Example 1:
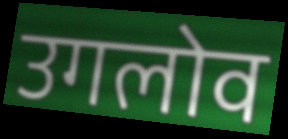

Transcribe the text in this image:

उगलोव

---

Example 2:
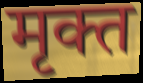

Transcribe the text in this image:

मृक्त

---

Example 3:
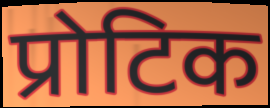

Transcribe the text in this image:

प्रोटिक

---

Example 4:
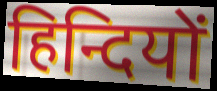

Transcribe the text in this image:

हिन्दियों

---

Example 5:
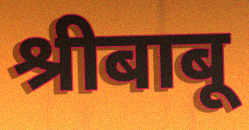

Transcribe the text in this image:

श्रीबाबू